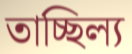
তাচ্ছিল্য